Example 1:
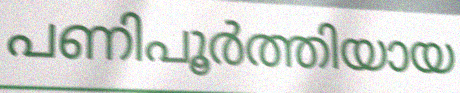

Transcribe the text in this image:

പണിപൂർത്തിയായ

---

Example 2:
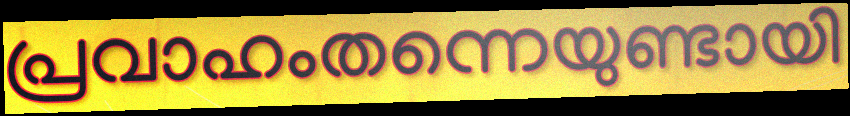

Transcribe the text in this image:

പ്രവാഹംതന്നെയുണ്ടായി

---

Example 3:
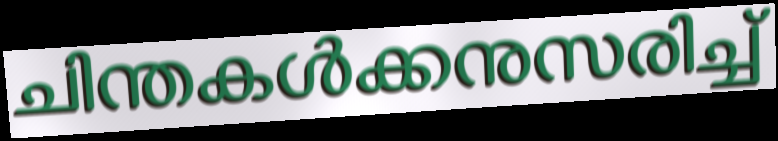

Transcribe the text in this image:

ചിന്തകൾക്കനുസരിച്ച്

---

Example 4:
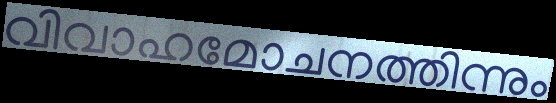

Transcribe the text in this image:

വിവാഹമോചനത്തിന്നും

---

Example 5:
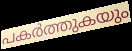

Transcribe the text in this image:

പകർത്തുകയും